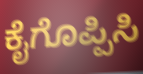
ಕೈಗೊಪ್ಪಿಸಿ